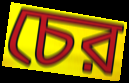
চের